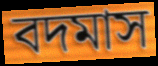
বদমাস